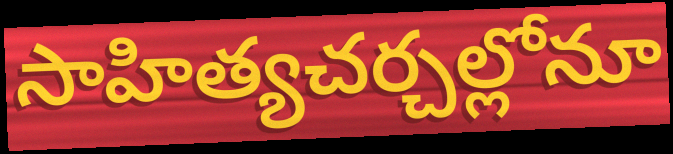
సాహిత్యచర్చల్లోనూ